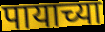
पायाच्या